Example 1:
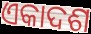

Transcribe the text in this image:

ଏକାଦଶ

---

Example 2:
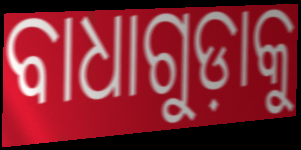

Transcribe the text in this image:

ବାଧାଗୁଡ଼ାକୁ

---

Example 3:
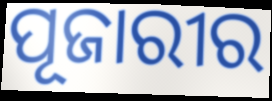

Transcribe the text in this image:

ପୂଜାରୀର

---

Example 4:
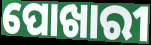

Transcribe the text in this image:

ପୋଖାରୀ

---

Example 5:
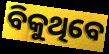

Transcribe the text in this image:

ବିକୁଥିବେ